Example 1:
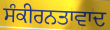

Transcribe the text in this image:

ਸੰਕੀਰਨਤਾਵਾਦ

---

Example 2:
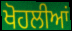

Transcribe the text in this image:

ਖੋਹਲੀਆਂ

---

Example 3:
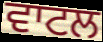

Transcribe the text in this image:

ਵਾਟਲ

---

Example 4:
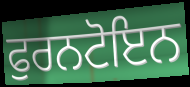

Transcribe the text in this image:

ਫੁਰਨਟੋਇਨ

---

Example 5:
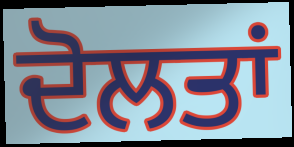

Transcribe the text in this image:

ਦੋਲਤਾਂ